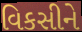
વિકસીને